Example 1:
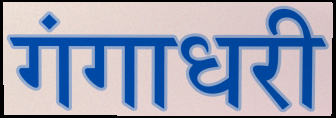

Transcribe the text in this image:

गंगाधरी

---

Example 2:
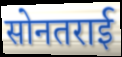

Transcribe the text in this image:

सोनतराई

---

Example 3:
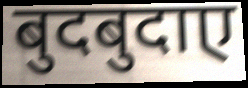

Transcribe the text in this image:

बुदबुदाए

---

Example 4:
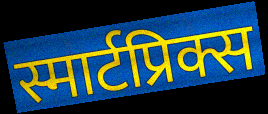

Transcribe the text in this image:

स्मार्टप्रिक्स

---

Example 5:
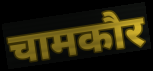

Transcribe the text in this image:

चामकौर